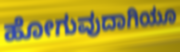
ಹೋಗುವುದಾಗಿಯೂ